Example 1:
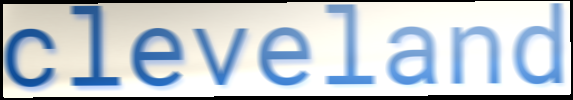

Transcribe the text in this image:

cleveland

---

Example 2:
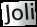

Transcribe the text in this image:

Joli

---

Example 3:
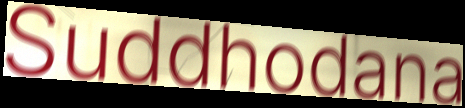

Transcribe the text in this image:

Suddhodana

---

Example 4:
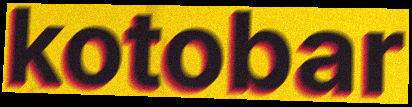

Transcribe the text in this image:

kotobar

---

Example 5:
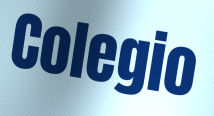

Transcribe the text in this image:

Colegio